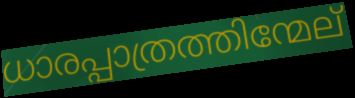
ധാരപ്പാത്രത്തിന്മേല്